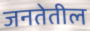
जनतेतील